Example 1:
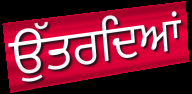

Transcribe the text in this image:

ਉੱਤਰਦਿਆਂ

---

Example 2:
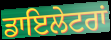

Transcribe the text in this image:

ਡਾਇਲੇਟਰਾਂ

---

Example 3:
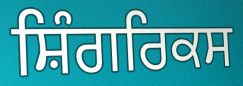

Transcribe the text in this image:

ਸ਼ਿੰਗਰਿਕਸ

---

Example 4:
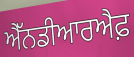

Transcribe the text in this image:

ਐੱਨਡੀਆਰਐਫ਼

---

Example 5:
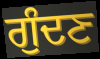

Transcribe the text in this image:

ਗੁੰਦਣ